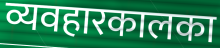
व्यवहारकालका